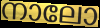
നാലോ